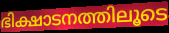
ഭിക്ഷാടനത്തിലൂടെ